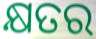
କ୍ଷତର